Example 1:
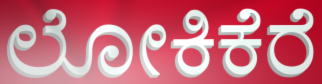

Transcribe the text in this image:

ಲೋಕಿಕೆರೆ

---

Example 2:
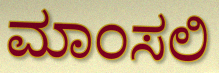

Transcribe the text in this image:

ಮಾಂಸಲಿ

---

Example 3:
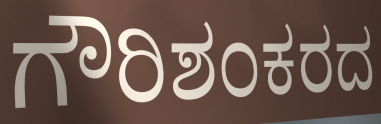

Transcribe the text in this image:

ಗೌರಿಶಂಕರದ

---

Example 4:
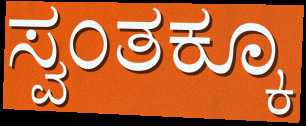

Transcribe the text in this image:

ಸ್ವಂತಕ್ಕೂ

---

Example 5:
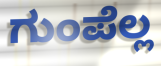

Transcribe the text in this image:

ಗುಂಪೆಲ್ಲ